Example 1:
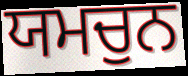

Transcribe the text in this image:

ਯਮਚੁਨ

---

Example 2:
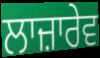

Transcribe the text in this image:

ਲਾਜ਼ਾਰੇਵ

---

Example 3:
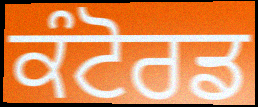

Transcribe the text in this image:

ਕੰਟੋਰਡ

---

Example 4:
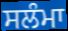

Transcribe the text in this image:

ਸਲੰਮਾ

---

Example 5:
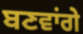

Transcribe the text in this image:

ਬਣਵਾਂਗੇ